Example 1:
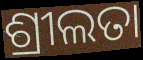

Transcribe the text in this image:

ଶ୍ରୀଲତା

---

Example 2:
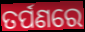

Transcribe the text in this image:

ତର୍ପଣରେ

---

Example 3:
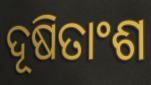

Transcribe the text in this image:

ଦୂଷିତାଂଶ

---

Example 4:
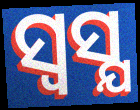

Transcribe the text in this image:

ସ୍ଵସ୍ଯ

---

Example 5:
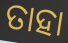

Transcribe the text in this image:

ତାହା